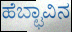
ಹೆಬ್ಟಾವಿನ